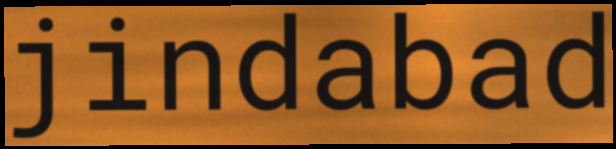
jindabad